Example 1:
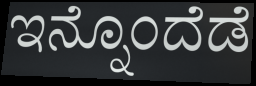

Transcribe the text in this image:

ಇನ್ನೊಂದೆಡೆ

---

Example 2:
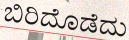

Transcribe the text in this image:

ಬಿರಿದೊಡೆದು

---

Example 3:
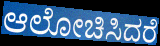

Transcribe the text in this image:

ಆಲೋಚಿಸಿದರೆ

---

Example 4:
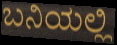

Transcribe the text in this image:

ಬನಿಯಲ್ಲಿ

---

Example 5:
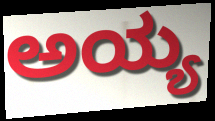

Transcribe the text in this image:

ಅಯ್ಯ